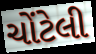
ચોંટેલી